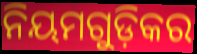
ନିୟମଗୁଡ଼ିକର